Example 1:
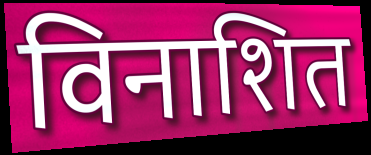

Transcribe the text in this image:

विनाशित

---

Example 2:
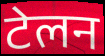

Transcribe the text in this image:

टेलन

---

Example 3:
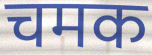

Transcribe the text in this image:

चमक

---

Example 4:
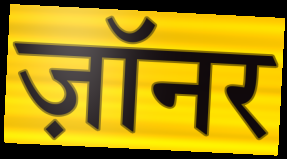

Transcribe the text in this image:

ज़ॉनर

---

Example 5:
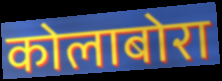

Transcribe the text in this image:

कोलाबोरा